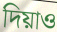
দিয়াও